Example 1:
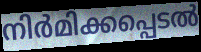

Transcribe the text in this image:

നിർമിക്കപ്പെടൽ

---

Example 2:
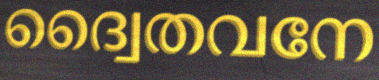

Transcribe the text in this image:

ദ്വൈതവനേ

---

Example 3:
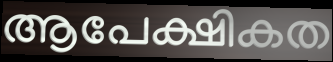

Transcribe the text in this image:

ആപേക്ഷികത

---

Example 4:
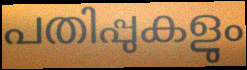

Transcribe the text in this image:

പതിപ്പുകളും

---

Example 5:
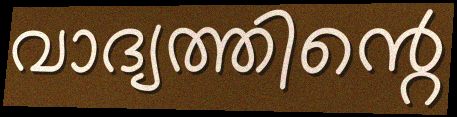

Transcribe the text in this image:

വാദ്യത്തിന്റെ